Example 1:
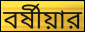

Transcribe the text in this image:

বর্ষীয়ার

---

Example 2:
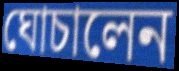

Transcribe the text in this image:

ঘোচালেন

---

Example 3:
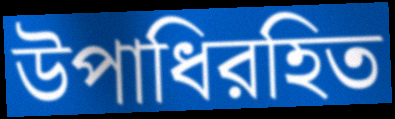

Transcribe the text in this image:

উপাধিরহিত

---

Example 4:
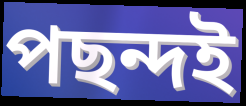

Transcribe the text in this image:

পছন্দই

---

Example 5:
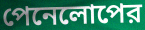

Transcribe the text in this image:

পেনেলোপের